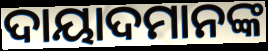
ଦାୟାଦମାନଙ୍କ